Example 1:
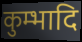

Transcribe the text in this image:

कुम्भादि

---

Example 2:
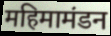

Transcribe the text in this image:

महिमामंडन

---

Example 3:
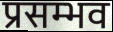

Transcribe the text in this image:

प्रसम्भव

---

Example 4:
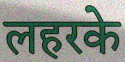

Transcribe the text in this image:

लहरके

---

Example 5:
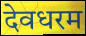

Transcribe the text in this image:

देवधरम